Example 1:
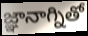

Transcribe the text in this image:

జ్ఞానాగ్నితో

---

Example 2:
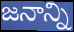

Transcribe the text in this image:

జనాన్ని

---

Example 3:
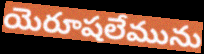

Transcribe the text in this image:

యెరూషలేమును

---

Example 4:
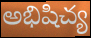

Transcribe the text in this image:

అభిషిచ్య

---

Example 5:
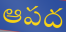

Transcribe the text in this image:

ఆపద